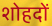
शोहदों